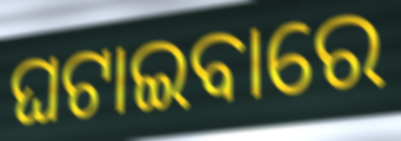
ଘଟାଇବାରେ